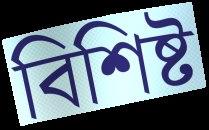
বিশিষ্ট